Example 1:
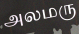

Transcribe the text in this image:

அலமரு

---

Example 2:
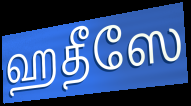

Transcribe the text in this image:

ஹதீஸே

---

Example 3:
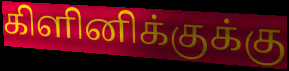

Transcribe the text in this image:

கிளினிக்குக்கு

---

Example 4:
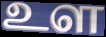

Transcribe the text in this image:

உள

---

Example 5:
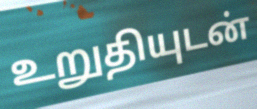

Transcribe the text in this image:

உறுதியுடன்